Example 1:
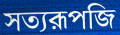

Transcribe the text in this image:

সত্যরূপজি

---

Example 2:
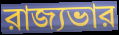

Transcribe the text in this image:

রাজ্যভার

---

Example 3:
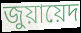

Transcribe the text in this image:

জুয়ায়েদ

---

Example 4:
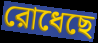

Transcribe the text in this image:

রোধেছে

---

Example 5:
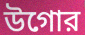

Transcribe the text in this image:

উগোর